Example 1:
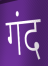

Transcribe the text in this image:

गंद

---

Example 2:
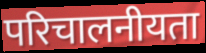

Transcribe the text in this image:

परिचालनीयता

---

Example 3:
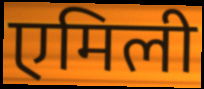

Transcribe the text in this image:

एमिली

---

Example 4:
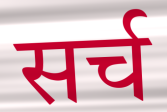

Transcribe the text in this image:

सर्च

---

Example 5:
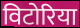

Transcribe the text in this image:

विटोरिया